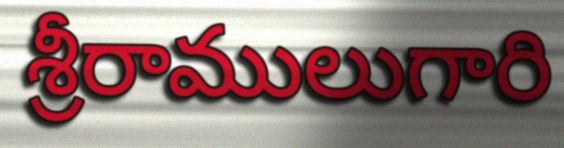
శ్రీరాములుగారి